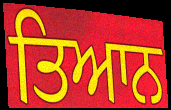
ਤਿਆਨ